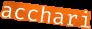
acchari